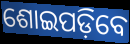
ଶୋଇପଡ଼ିବେ